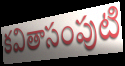
కవితాసంపుటి